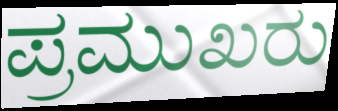
ಪ್ರಮುಖರು